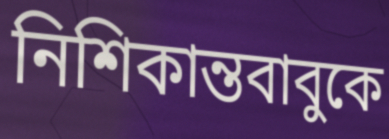
নিশিকান্তবাবুকে